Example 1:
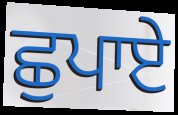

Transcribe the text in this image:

ਛੁਪਾਏ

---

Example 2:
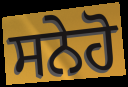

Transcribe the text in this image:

ਸਨੇਹੋ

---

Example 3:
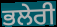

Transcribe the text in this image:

ਭਲੇਰੀ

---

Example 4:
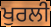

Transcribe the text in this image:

ਖੁਰਲੀ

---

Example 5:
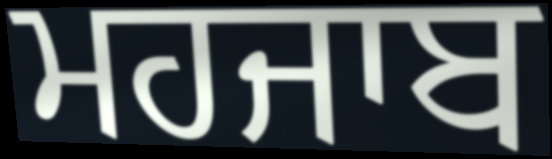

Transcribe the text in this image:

ਮਹਜਾਬ